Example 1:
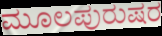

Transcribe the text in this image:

ಮೂಲಪುರುಷರ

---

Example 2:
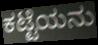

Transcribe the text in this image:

ಕಟ್ಟೆಯನು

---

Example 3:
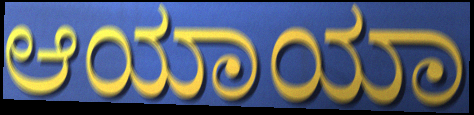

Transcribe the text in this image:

ಆಯಾಯಾ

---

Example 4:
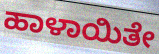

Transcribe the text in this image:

ಹಾಳಾಯಿತೇ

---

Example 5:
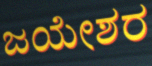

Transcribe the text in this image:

ಜಯೇಶರ